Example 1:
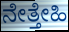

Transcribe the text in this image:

ನೇತ್ತೇಹಿ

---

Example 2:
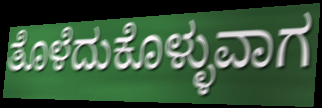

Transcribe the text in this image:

ತೊಳೆದುಕೊಳ್ಳುವಾಗ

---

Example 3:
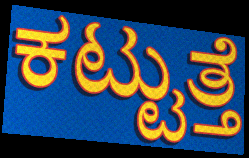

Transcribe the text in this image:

ಕಟ್ಟುತ್ತೆ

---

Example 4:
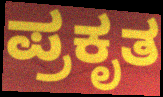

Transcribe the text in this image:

ಪ್ರಕೃತ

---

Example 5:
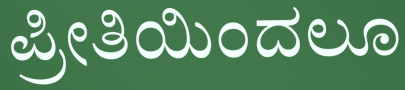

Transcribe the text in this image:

ಪ್ರೀತಿಯಿಂದಲೂ